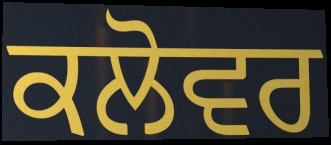
ਕਲੋਵਰ